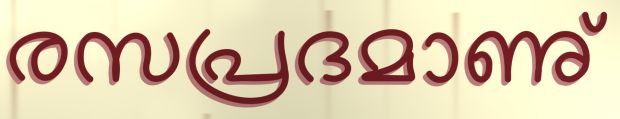
രസപ്രദമാണു്